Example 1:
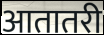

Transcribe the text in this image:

आतातरी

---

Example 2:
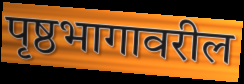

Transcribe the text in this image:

पृष्ठभागावरील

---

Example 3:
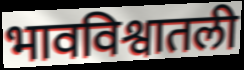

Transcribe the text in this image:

भावविश्वातली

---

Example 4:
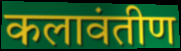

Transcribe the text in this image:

कलावंतीण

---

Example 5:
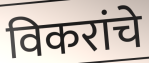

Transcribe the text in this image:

विकरांचे